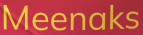
Meenaks